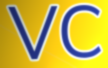
VC